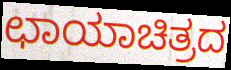
ಛಾಯಾಚಿತ್ರದ